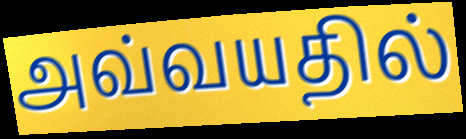
அவ்வயதில்